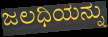
ಜಲಧಿಯನ್ನು